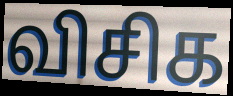
விசிக